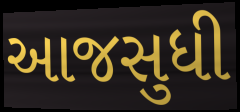
આજસુધી